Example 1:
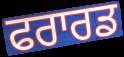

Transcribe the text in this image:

ਫਰਾਰਡ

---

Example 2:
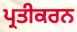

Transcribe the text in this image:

ਪ੍ਰਤੀਕਰਨ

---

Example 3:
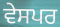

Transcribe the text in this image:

ਵੇਸਪਰ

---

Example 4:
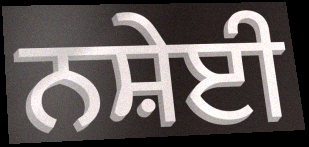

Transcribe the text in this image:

ਨਸ਼ੇਈ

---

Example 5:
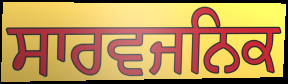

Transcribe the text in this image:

ਸਾਰਵਜਨਿਕ